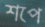
শপে